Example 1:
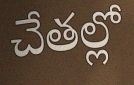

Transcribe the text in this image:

చేతల్లో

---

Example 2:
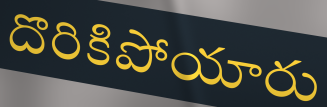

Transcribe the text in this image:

దొరికిపోయారు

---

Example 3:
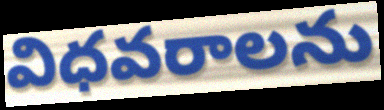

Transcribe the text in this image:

విధవరాలను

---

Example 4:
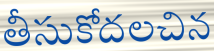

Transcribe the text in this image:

తీసుకోదలచిన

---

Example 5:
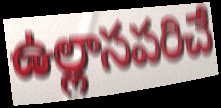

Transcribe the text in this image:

ఉల్లాసపరిచే